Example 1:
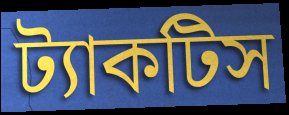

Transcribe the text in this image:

ট্যাকটিস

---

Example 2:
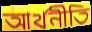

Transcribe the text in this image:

আর্থনীতি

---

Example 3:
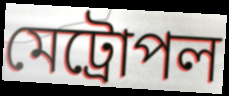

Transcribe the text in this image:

মেট্রোপল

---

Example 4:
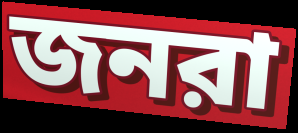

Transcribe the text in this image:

জনরা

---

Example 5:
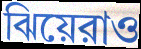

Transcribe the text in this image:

ঝিয়েরাও